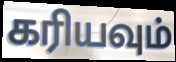
கரியவும்